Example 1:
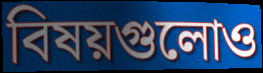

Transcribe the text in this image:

বিষয়গুলোও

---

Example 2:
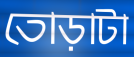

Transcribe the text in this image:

তোড়াটা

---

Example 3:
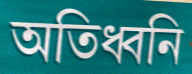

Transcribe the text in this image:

অতিধ্বনি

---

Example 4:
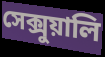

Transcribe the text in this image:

সেক্সুয়ালি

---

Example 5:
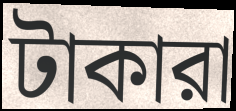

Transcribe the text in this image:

টাকারা